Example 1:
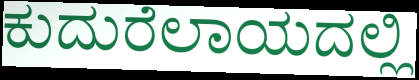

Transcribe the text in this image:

ಕುದುರೆಲಾಯದಲ್ಲಿ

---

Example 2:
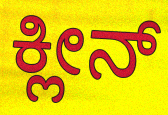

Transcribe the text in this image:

ಕ್ಲೀನ್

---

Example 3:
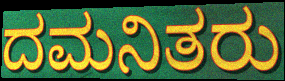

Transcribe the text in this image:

ದಮನಿತರು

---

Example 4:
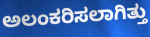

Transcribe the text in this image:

ಅಲಂಕರಿಸಲಾಗಿತ್ತು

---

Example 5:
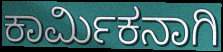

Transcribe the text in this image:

ಕಾರ್ಮಿಕನಾಗಿ